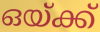
ഒയ്ക്ക്